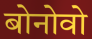
बोनोवो